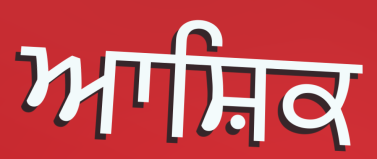
ਆਸ਼ਿਕ